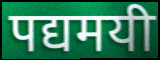
पद्यमयी